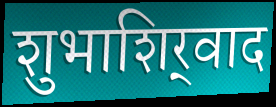
शुभाशिर्वाद